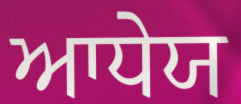
ਆਧੇਯ